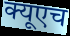
क्यूएच